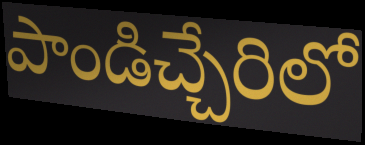
పాండిచ్చేరిలో